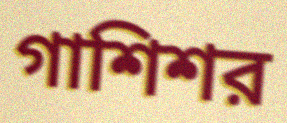
গাশিশর